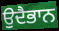
ਉਦੈਭਾਨ